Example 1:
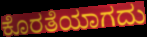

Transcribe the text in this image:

ಕೊರತೆಯಾಗದು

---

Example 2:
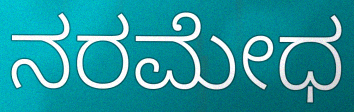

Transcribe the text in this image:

ನರಮೇಧ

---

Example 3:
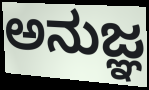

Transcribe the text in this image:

ಅನುಜ್ಞ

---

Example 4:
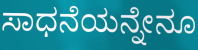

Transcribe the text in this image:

ಸಾಧನೆಯನ್ನೇನೂ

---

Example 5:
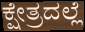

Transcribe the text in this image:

ಕ್ಷೇತ್ರದಲ್ಲೆ